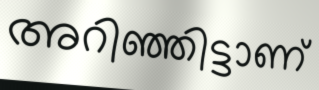
അറിഞ്ഞിട്ടാണ്